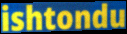
ishtondu